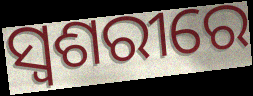
ସ୍ୱଶରୀରେ